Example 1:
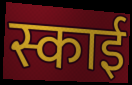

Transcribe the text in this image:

स्काई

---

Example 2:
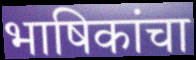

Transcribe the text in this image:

भाषिकांचा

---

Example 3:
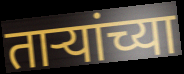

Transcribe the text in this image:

तार्‍यांच्या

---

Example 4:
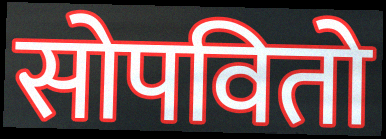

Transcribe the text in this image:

सोपवितो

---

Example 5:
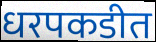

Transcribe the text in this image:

धरपकडीत